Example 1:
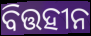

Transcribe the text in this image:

ବିତ୍ତହୀନ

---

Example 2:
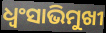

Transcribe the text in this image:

ଧ୍ଵଂସାଭିମୁଖୀ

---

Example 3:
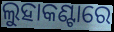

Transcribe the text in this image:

ଲୁହାକଣ୍ଟାରେ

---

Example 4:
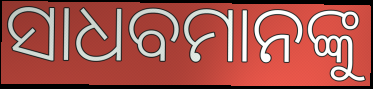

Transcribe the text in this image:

ସାଧବମାନଙ୍କୁ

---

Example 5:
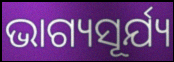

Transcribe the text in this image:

ଭାଗ୍ୟସୂର୍ଯ୍ୟ